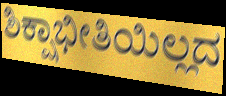
ಶಿಕ್ಷಾಭೀತಿಯಿಲ್ಲದ